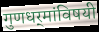
गुणधर्मांविषयी